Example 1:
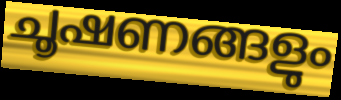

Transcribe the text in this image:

ചൂഷണങ്ങളും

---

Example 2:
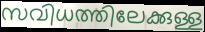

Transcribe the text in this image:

സവിധത്തിലേക്കുള്ള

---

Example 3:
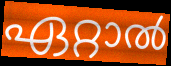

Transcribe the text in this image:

ഏറ്റാൽ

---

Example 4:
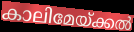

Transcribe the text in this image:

കാലിമേയ്ക്കൽ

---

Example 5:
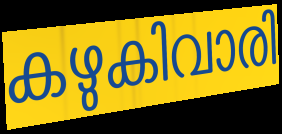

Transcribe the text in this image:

കഴുകിവാരി